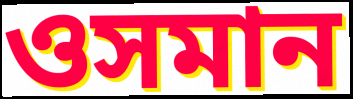
ওসমান